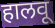
हालवू